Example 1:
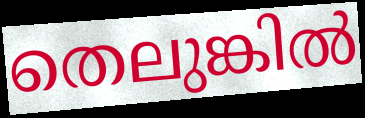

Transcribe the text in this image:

തെലുങ്കിൽ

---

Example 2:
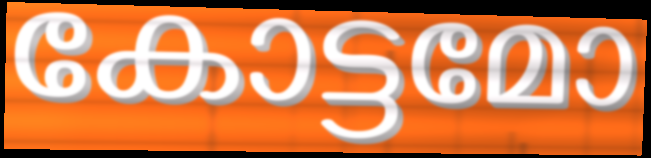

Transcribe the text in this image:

കോട്ടമോ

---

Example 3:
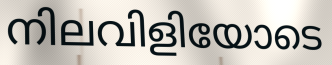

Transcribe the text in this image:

നിലവിളിയോടെ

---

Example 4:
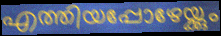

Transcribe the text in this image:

എത്തിയപ്പോഴേയ്ക്കും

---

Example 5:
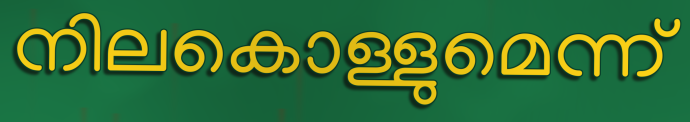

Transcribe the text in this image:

നിലകൊള്ളുമെന്ന്